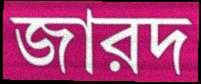
জারদ